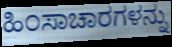
ಹಿಂಸಾಚಾರಗಳನ್ನು